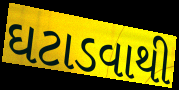
ઘટાડવાથી